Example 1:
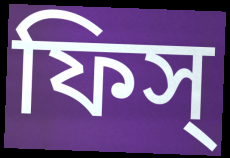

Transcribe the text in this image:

ফিস্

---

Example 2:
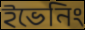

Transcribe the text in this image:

ইভেনিং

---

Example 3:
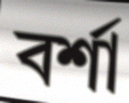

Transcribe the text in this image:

বর্শা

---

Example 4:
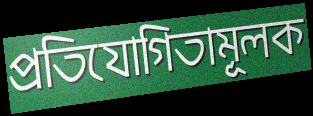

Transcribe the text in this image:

প্রতিযোগিতামূলক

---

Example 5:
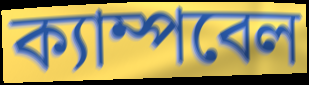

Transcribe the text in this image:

ক্যাম্পবেল